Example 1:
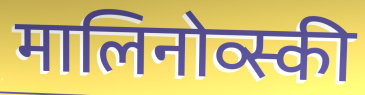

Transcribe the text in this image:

मालिनोव्स्की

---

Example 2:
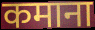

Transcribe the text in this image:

कमाना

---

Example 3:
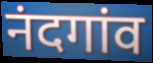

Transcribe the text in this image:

नंदगांव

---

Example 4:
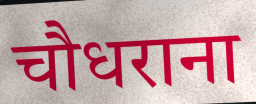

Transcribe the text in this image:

चौधराना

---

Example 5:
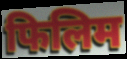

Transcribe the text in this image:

फिलिम